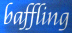
baffling